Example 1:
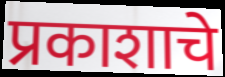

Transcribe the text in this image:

प्रकाशाचे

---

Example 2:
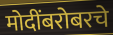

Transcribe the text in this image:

मोदींबरोबरचे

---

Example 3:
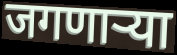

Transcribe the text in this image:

जगणार्‍या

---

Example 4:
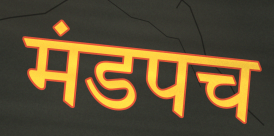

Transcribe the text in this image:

मंडपच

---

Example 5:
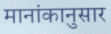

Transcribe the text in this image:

मानांकानुसार